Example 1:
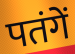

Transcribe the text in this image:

पतंगें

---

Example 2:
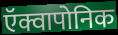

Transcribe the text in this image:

ऍक्वापोनिक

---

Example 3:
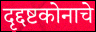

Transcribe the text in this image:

दृद्दष्टकोनाचे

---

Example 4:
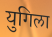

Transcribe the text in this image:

युगिला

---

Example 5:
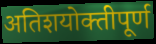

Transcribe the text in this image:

अतिशयोक्तीपूर्ण